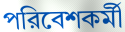
পরিবেশকর্মী